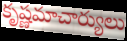
కృష్ణమాచార్యులు